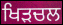
ਖਿੜਚਲ